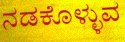
ನಡಕೊಳ್ಳುವ